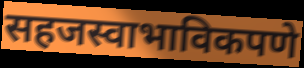
सहजस्वाभाविकपणे